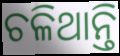
ଚଳିଥାନ୍ତି